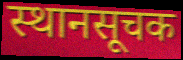
स्थानसूचक